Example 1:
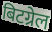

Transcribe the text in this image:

बिटग्रेल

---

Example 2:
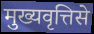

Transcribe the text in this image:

मुख्यवृत्तिसे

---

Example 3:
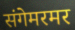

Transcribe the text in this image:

संगेमरमर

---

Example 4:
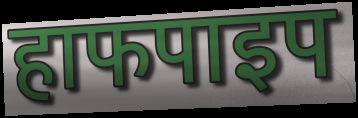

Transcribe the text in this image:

हाफपाइप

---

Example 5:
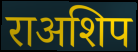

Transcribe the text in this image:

राअशिप